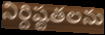
నిర్దిష్టతలను